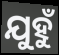
ଯୁହୁଁ